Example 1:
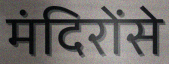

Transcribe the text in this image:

मंदिरोंसे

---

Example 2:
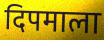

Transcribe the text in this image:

दिपमाला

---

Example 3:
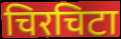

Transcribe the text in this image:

चिरचिटा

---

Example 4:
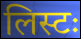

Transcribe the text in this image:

लिस्टः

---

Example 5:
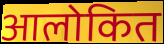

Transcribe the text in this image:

आलोकित